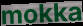
mokka